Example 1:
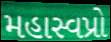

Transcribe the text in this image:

મહાસ્વપ્રો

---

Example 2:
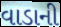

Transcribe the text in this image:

વાડાની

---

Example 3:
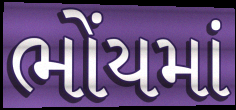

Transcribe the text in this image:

ભોંયમાં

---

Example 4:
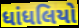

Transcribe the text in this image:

ધાંધલિયો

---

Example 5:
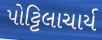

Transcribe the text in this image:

પોટ્ટિલાચાર્ય